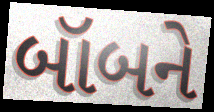
બૉબને